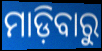
ମାଡ଼ିବାରୁ